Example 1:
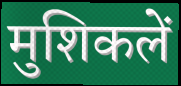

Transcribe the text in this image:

मुशिकलें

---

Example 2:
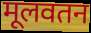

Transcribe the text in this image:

मूलवतन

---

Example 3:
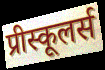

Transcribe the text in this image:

प्रीस्कूलर्स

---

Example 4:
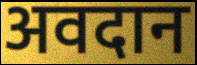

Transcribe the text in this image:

अवदान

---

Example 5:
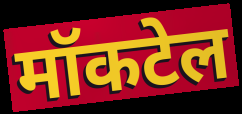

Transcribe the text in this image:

मॉकटेल